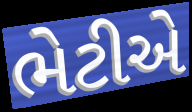
ભેટીએ